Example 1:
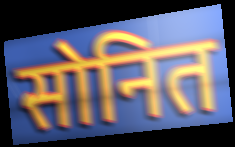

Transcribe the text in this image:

सोनित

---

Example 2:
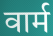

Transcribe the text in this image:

वार्म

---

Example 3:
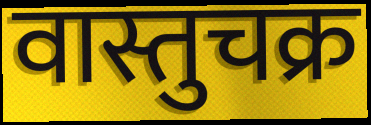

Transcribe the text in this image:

वास्तुचक्र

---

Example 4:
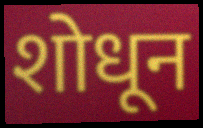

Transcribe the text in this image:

शोधून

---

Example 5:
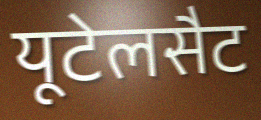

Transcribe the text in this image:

यूटेलसैट